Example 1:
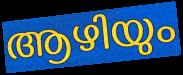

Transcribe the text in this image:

ആഴിയും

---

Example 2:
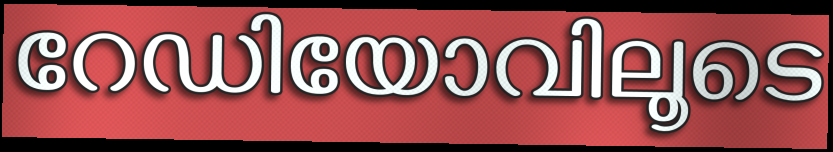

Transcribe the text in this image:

റേഡിയോവിലൂടെ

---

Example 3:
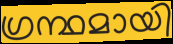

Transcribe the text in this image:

ഗ്രന്ഥമായി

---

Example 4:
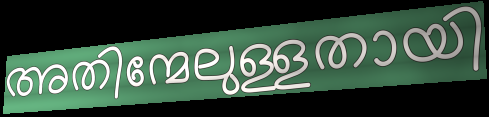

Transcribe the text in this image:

അതിന്മേലുള്ളതായി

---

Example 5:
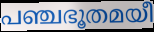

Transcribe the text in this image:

പഞ്ചഭൂതമയീ